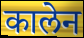
कालेन